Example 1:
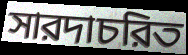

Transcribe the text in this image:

সারদাচরিত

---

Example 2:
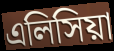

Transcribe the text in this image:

এলিসিয়া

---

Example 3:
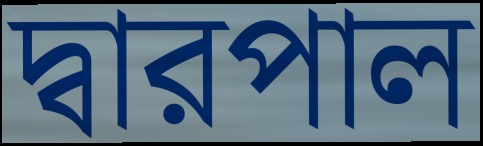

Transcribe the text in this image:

দ্বারপাল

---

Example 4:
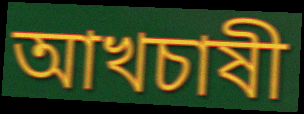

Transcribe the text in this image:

আখচাষী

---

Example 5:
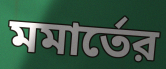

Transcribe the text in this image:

মমার্তের